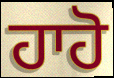
ਹਾਹੋ